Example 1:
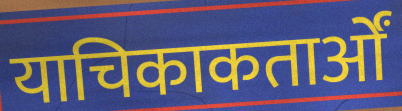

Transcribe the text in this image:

याचिकाकतार्ओं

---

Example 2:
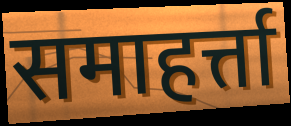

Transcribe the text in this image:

समाहर्त्ता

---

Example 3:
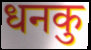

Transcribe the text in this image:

धनकु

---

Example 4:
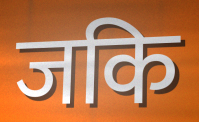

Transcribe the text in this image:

जकि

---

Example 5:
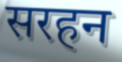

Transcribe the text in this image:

सरहन